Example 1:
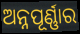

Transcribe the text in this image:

ଅନ୍ନପୂର୍ଣ୍ଣାର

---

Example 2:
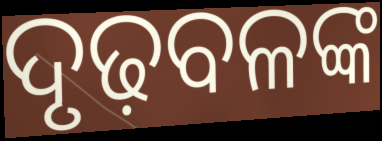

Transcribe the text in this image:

ଦୃଢ଼ବଳଙ୍କ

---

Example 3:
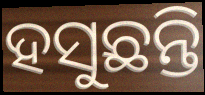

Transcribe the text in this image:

ହସୁଛନ୍ତି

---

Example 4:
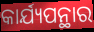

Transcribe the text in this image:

କାର୍ଯ୍ୟପନ୍ଥାର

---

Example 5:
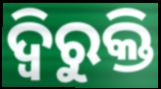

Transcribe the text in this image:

ଦ୍ୱିରୁକ୍ତି